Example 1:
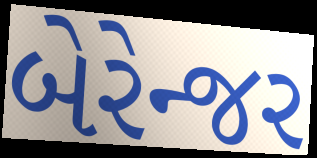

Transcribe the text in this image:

બેરેન્જર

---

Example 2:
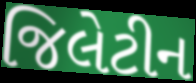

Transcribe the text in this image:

જિલેટીન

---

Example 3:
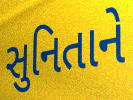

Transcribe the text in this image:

સુનિતાને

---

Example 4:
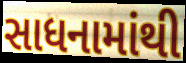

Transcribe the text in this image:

સાધનામાંથી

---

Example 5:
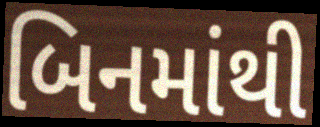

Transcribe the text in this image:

બિનમાંથી